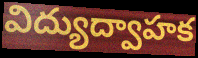
విద్యుద్వాహక